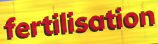
fertilisation